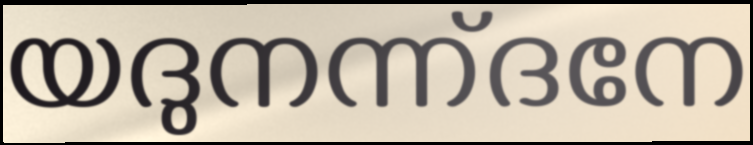
യദുനന്ന്ദനേ